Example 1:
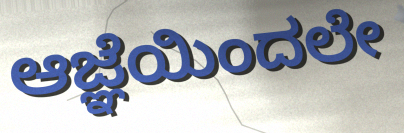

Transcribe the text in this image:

ಆಜ್ಞೆಯಿಂದಲೇ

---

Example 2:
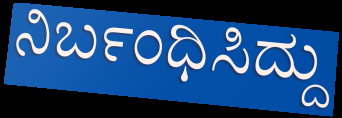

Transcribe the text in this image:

ನಿರ್ಬಂಧಿಸಿದ್ದು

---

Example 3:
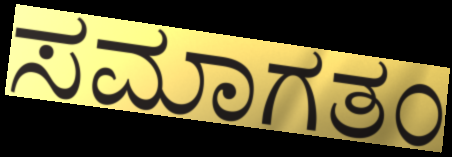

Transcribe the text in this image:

ಸಮಾಗತಂ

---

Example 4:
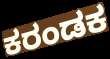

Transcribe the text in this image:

ಕರಂಡಕ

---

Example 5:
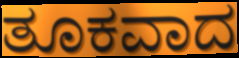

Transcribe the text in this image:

ತೂಕವಾದ